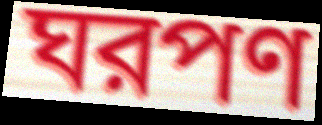
ঘরপণ